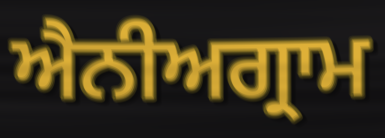
ਐਨੀਅਗ੍ਰਾਮ